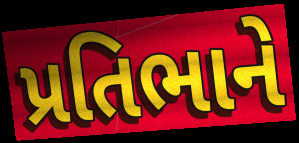
પ્રતિભાને